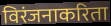
विरंजनाकरिता